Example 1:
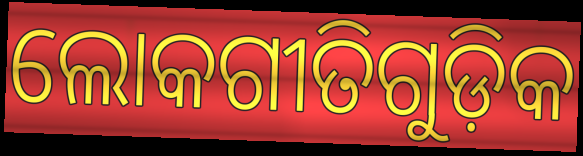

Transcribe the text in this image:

ଲୋକଗୀତିଗୁଡ଼ିକ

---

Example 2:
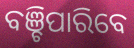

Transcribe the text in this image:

ବଞ୍ଚିପାରିବେ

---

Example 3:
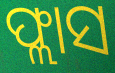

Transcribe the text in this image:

ଫ୍ଲାସ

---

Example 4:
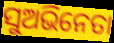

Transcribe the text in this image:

ସୁଅଭିନେତା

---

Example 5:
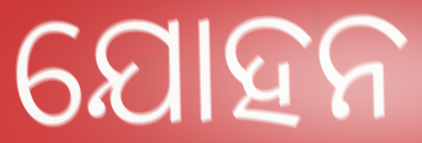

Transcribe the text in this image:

ଯୋହନ